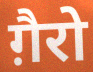
ग़ैरो